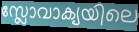
സ്ലോവാക്യയിലെ